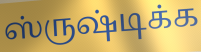
ஸ்ருஷ்டிக்க